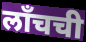
लाँचची